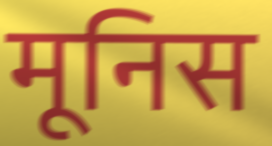
मूनिस